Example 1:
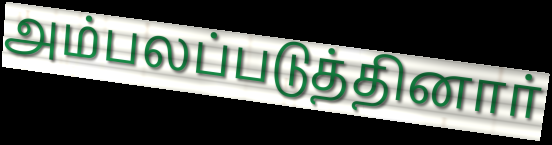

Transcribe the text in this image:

அம்பலப்படுத்தினார்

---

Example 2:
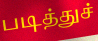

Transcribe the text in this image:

படித்துச்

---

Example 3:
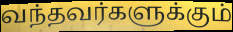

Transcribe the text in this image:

வந்தவர்களுக்கும்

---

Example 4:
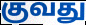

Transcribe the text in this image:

குவது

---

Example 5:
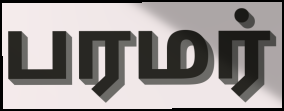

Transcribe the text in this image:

பரமர்